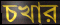
চখার